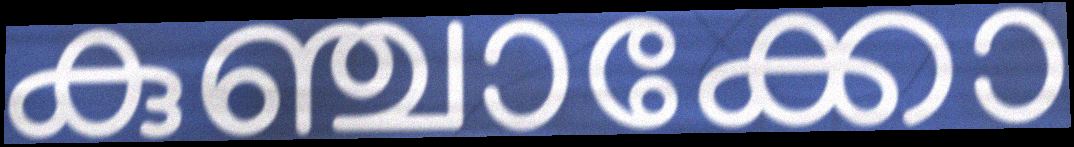
കുഞ്ചാക്കോ